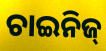
ଚାଇନିଜ୍